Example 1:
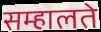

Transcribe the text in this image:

सम्हालते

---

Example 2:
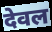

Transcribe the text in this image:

देवल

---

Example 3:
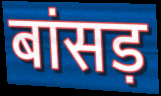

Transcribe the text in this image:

बांसड़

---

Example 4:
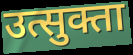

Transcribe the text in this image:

उत्सुक्ता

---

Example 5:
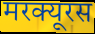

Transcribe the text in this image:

मरक्यूरस